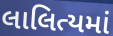
લાલિત્યમાં